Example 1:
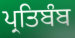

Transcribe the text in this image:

ਪ੍ਰਤਿਬੰਬ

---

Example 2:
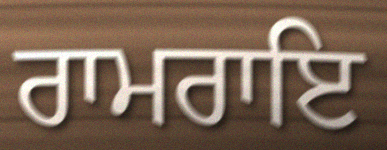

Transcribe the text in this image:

ਰਾਮਰਾਇ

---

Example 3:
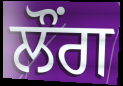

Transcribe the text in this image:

ਲੌਂਗ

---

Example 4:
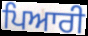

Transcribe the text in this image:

ਪਿਆਰੀ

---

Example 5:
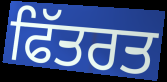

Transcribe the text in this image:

ਫਿੱਤਰਤ